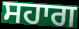
ਸਹਾਗ